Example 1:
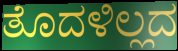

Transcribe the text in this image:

ತೊದಳಿಲ್ಲದ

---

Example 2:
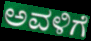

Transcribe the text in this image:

ಅವಳಿಗೆ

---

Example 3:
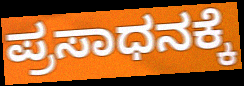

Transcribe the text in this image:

ಪ್ರಸಾಧನಕ್ಕೆ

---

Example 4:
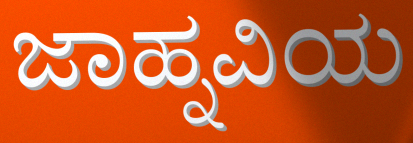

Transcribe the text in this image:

ಜಾಹ್ನವಿಯ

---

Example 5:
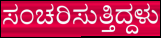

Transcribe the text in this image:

ಸಂಚರಿಸುತ್ತಿದ್ದಳು